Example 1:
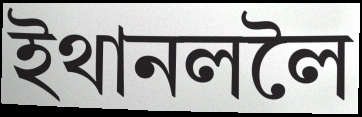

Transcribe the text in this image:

ইথানললৈ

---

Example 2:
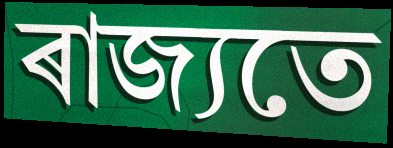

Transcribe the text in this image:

ৰাজ্যতে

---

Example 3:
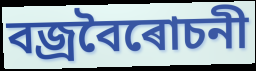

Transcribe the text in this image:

বজ্ৰবৈৰোচনী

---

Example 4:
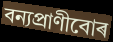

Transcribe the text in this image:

বন্যপ্ৰাণীবোৰ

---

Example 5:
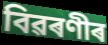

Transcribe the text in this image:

বিৱৰণীৰ